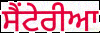
ਸੈਂਟੇਰੀਆ